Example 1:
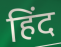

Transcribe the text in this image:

हिंद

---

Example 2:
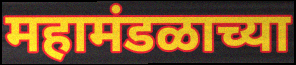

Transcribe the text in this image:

महामंडळाच्या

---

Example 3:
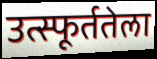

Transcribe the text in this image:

उत्स्फूर्ततेला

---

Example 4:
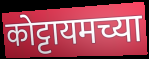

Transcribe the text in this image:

कोट्टायमच्या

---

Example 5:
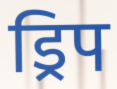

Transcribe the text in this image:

ड्रिप